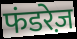
फंडरेज़